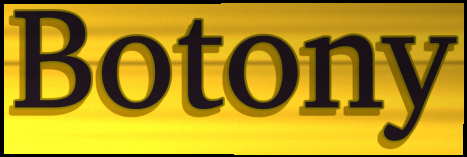
Botony